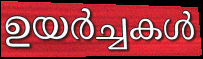
ഉയർച്ചകൾ